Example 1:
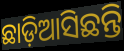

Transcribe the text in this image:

ଛାଡ଼ିଆସିଛନ୍ତି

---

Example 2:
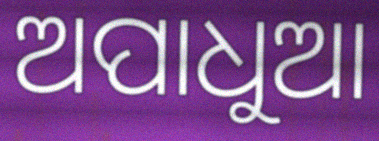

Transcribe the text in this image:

ଅପାଧୁଆ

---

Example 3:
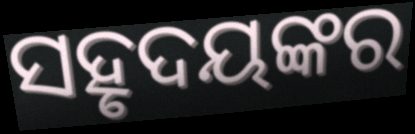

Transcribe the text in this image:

ସହୃଦୟଙ୍କର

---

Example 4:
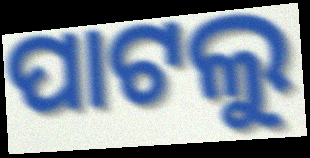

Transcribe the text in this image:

ପାଟଲୁ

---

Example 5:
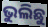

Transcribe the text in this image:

ଭୁଲିଛୁ